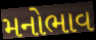
મનોભાવ